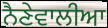
ਨੈਣੇਵਾਲੀਆ